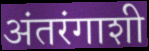
अंतरंगाशी